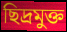
ছিদ্রমুক্ত